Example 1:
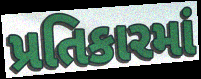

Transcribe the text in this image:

પ્રતિકારમાં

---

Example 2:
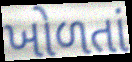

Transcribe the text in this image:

ખોળતાં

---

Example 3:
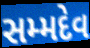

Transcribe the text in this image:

સમ્મદેવ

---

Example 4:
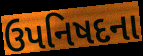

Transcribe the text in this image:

ઉપનિષદના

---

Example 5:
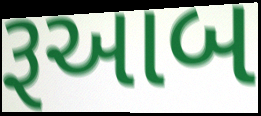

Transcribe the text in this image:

રૂઆબ